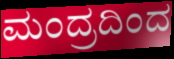
ಮಂದ್ರದಿಂದ